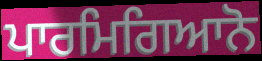
ਪਾਰਮਿਗਿਆਨੋ